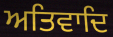
ਅਤਿਵਾਦਿ